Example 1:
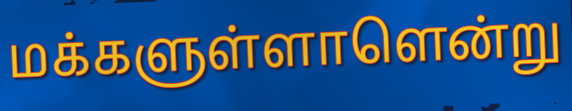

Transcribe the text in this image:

மக்களுள்ளாளென்று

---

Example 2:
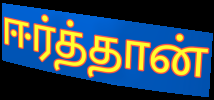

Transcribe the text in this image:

ஈர்த்தான்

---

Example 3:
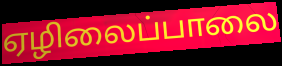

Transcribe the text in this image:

ஏழிலைப்பாலை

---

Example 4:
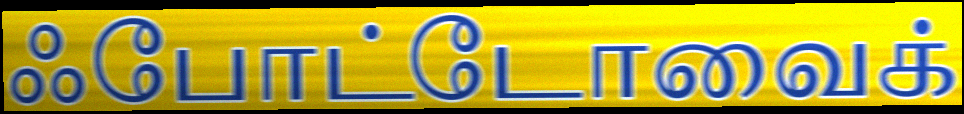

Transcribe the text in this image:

ஃபோட்டோவைக்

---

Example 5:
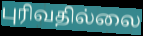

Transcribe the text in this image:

புரிவதில்லை